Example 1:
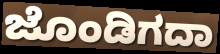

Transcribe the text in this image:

ಜೊಂಡಿಗದಾ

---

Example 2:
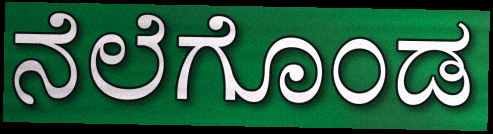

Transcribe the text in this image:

ನೆಲೆಗೊಂಡ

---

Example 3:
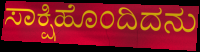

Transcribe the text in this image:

ಸಾಕ್ಷಿಹೊಂದಿದನು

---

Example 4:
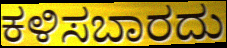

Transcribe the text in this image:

ಕಳಿಸಬಾರದು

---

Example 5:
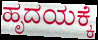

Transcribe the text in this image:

ಹೃದಯಕ್ಕೆ